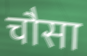
चौसा